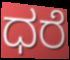
ಧರೆ